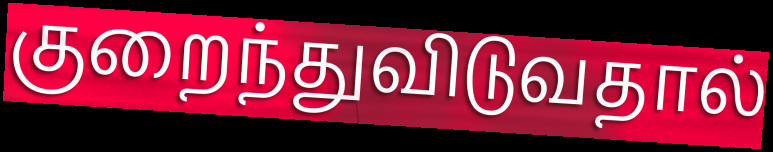
குறைந்துவிடுவதால்